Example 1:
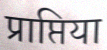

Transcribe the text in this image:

प्राप्तिया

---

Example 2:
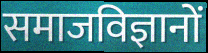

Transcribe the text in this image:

समाजविज्ञानों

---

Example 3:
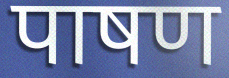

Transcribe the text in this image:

पाषण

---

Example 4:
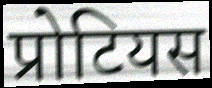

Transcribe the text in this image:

प्रोटियस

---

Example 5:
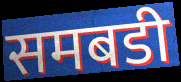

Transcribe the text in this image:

समबडी